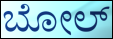
ಬೋಲ್